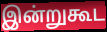
இன்றுகூட